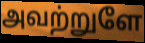
அவற்றுளே